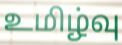
உமிழ்வு